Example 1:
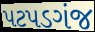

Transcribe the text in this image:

પટપડગંજ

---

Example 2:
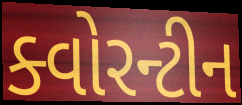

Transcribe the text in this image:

ક્વોરન્ટીન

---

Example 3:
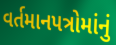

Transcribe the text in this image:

વર્તમાનપત્રોમાંનું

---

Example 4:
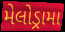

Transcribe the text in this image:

મેલોડ્રામા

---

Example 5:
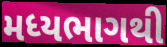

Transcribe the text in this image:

મધ્યભાગથી